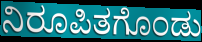
ನಿರೂಪಿತಗೊಂಡು